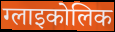
ग्लाइकोलिक